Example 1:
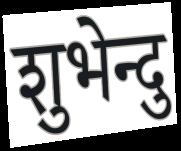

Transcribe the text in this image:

शुभेन्दु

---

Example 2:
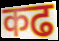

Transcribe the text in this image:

कढ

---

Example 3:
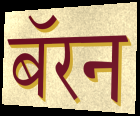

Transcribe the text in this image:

बॅरन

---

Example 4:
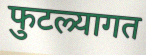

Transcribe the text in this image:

फुटल्यागत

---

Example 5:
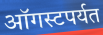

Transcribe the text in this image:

ऑगस्टपर्यत